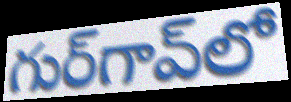
గుర్‌గావ్‌లో